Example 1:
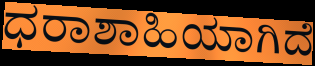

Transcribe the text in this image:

ಧರಾಶಾಹಿಯಾಗಿದೆ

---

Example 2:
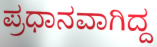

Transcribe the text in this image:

ಪ್ರಧಾನವಾಗಿದ್ದ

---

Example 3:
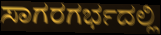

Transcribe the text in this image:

ಸಾಗರಗರ್ಭದಲ್ಲಿ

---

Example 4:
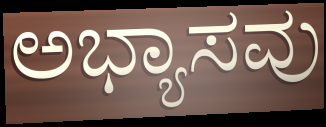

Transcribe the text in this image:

ಅಭ್ಯಾಸವು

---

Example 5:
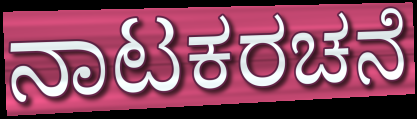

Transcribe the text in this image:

ನಾಟಕರಚನೆ